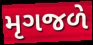
મૃગજળે